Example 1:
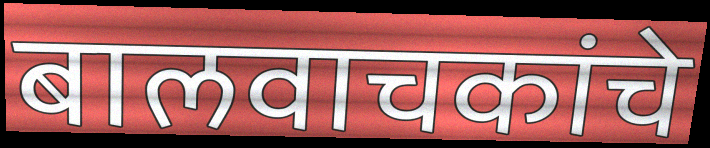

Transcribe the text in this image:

बालवाचकांचे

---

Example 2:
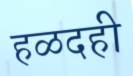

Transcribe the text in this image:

हळदही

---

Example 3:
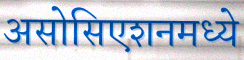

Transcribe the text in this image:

असोसिएशनमध्ये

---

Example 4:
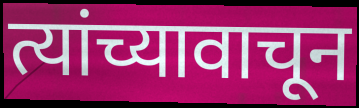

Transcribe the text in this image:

त्यांच्यावाचून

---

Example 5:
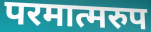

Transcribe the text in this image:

परमात्मरुप